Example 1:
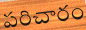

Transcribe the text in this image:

పరిచారం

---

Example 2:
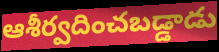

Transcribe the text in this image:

ఆశీర్వదించబడ్డాడు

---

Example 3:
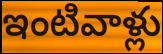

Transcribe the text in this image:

ఇంటివాళ్లు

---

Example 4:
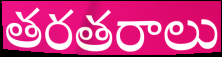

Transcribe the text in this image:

తరతరాలు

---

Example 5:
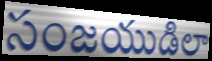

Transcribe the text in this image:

సంజయుడిలా